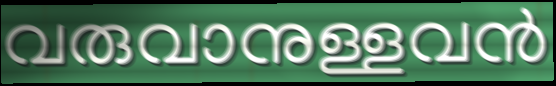
വരുവാനുള്ളവൻ